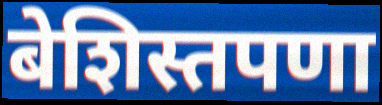
बेशिस्तपणा